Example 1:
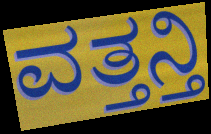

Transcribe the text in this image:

ವತ್ತನ್ತಿ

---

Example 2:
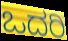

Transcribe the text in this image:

ಒದರಿ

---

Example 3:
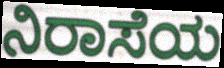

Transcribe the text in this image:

ನಿರಾಸೆಯ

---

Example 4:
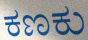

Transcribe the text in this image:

ಕಣಕು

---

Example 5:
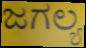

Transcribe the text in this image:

ಜಗಲ್ಯ